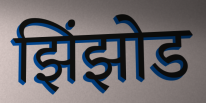
झिंझोड